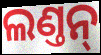
ଲଣ୍ତନ୍